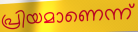
പ്രിയമാണെന്ന്